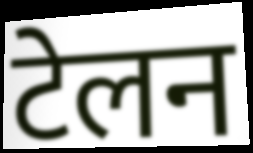
टेलन